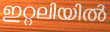
ഇറ്റലിയിൽ